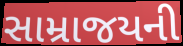
સામ્રાજયની